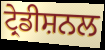
ਟ੍ਰੇਡੀਸ਼ਨਲ